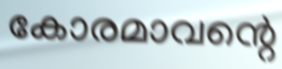
കോരമാവന്റെ